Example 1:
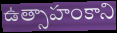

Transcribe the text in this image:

ఉత్సాహంకాని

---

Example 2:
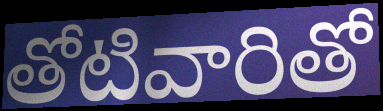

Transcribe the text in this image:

తోటివారితో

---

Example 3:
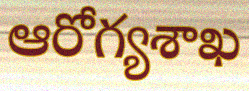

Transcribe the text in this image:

ఆరోగ్యశాఖ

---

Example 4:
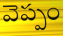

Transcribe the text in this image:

వెప్పం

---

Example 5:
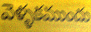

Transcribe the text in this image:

వెళ్ళకముందు